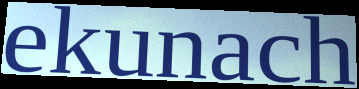
ekunach